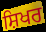
ਸ਼ਿਖਰ